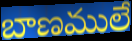
బాణములే